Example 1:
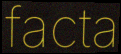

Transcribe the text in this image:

facta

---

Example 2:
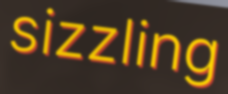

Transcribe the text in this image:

sizzling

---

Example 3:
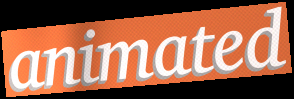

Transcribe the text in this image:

animated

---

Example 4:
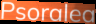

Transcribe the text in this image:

Psoralea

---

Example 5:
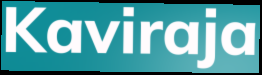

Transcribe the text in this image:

Kaviraja